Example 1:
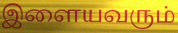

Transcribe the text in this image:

இளையவரும்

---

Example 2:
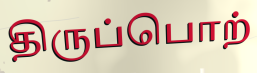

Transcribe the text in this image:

திருப்பொற்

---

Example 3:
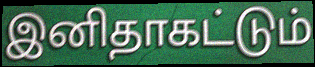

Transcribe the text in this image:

இனிதாகட்டும்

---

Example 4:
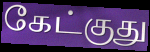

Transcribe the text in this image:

கேட்குது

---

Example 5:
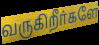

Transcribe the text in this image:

வருகிறீர்களே